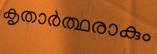
കൃതാർത്ഥരാകും